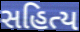
સહિત્ય